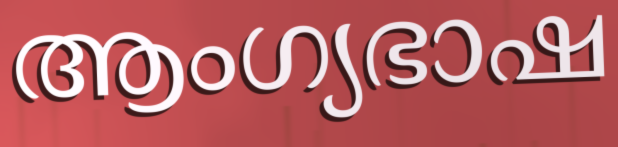
ആംഗ്യഭാഷ